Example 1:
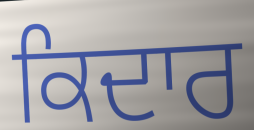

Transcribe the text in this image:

ਕਿਦਾਰ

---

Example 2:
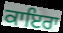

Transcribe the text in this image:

ਕਾਇਰਾ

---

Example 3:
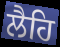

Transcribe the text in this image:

ਲੈਹਿ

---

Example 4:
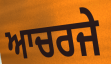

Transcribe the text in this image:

ਆਚਰਜੇ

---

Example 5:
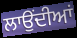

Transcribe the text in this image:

ਲਾਉਂਦੀਆਂ